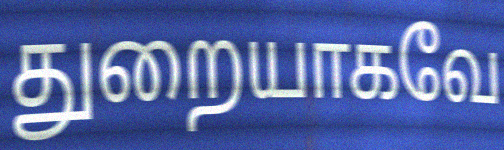
துறையாகவே